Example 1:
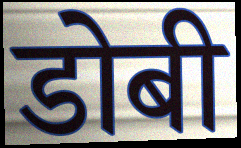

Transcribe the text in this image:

डोबी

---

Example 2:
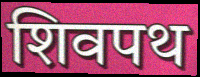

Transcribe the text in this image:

शिवपथ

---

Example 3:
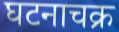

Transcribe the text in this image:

घटनाचक्र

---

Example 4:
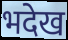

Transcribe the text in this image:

भदेख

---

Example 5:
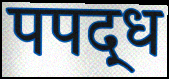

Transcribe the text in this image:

पपद्ध